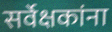
सर्वेक्षकांना